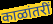
काळांतरीं